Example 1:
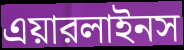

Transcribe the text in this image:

এয়ারলাইনস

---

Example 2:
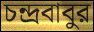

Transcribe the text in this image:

চন্দ্রবাবুর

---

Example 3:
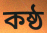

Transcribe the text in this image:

কষ্ঠ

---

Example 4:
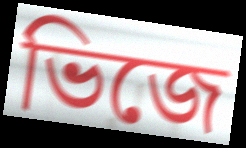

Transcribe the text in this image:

ভিজে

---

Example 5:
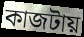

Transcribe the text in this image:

কাজটায়